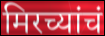
मिरच्यांचं